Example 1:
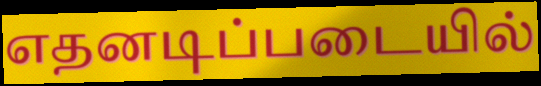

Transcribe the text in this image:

எதனடிப்படையில்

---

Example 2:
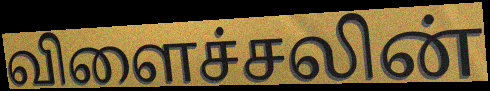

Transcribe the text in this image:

விளைச்சலின்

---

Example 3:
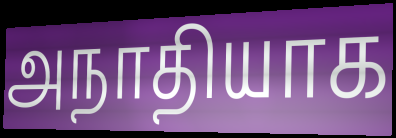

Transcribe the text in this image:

அநாதியாக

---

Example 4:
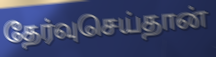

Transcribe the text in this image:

தேர்வுசெய்தான்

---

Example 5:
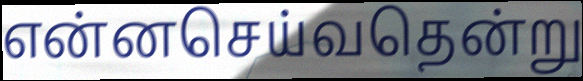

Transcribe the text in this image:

என்னசெய்வதென்று